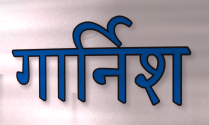
गार्निश